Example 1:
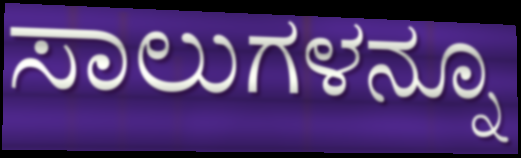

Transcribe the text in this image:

ಸಾಲುಗಳನ್ನೂ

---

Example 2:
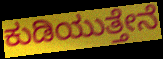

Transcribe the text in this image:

ಕುಡಿಯುತ್ತೇನೆ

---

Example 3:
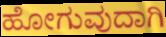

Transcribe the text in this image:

ಹೋಗುವುದಾಗಿ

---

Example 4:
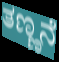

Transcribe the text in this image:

ತಣ್ಣನೆ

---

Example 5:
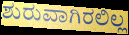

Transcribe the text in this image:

ಶುರುವಾಗಿರಲಿಲ್ಲ